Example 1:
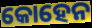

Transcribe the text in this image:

କୋହେନ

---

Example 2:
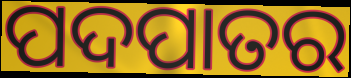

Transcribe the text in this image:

ପଦପାତର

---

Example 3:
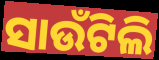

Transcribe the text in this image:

ସାଉଁଟିଲି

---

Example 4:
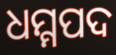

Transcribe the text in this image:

ଧମ୍ମପଦ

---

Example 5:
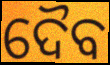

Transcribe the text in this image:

ଦୈବ